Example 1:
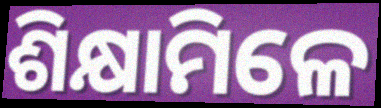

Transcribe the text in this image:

ଶିକ୍ଷାମିଳେ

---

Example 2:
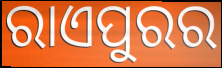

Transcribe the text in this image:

ରାଏପୁରର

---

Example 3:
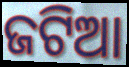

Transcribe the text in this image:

ଜଟିଆ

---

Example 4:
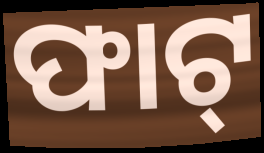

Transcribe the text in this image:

ଫାଟ୍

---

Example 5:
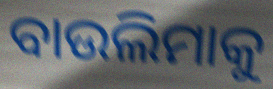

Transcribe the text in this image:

ବାଉଲିମାକୁ